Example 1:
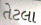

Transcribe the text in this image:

તેટલા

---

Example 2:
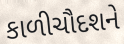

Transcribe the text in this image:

કાળીચૌદશને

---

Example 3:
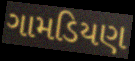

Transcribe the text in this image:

ગામડિયણ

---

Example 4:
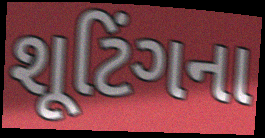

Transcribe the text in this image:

શૂટિંગના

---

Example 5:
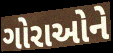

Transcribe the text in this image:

ગોરાઓને